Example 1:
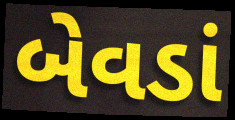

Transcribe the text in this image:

બેવડાં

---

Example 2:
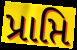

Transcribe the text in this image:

પ્રાપ્તિ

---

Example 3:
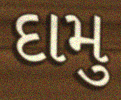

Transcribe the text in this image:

દામુ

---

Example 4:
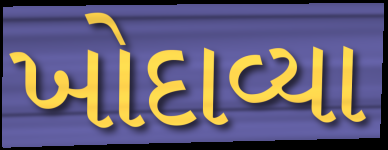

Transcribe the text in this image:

ખોદાવ્યા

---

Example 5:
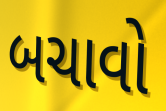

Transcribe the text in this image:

બચાવો